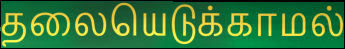
தலையெடுக்காமல்